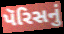
પૅરિસનું